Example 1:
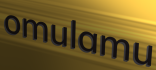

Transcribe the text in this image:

omulamu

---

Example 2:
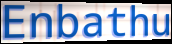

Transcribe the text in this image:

Enbathu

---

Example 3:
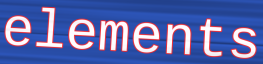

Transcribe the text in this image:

elements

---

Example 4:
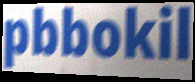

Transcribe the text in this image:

pbbokil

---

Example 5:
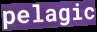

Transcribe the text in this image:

pelagic